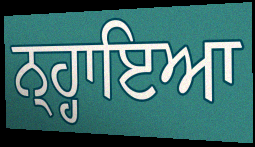
ਨ੍ਹ੍ਹਾਇਆ